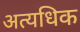
अत्यधिक